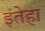
इंतेहा